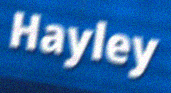
Hayley